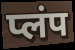
प्लंप